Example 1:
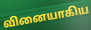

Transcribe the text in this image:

வினையாகிய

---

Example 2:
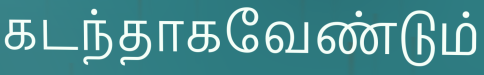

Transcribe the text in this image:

கடந்தாகவேண்டும்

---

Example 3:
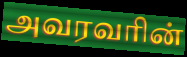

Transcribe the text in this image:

அவரவரின்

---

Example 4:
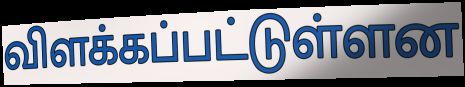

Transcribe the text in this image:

விளக்கப்பட்டுள்ளன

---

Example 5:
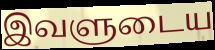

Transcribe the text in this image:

இவளுடைய